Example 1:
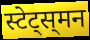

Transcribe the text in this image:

स्टेट्स्‌मन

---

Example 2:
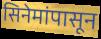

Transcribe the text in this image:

सिनेमांपासून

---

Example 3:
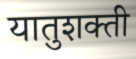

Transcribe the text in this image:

यातुशक्ती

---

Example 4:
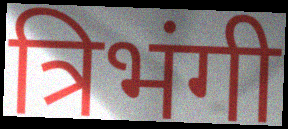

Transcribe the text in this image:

त्रिभंगी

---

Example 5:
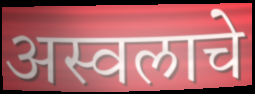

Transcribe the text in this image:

अस्वलाचे